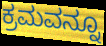
ಕ್ರಮವನ್ನೂ